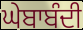
ਘੇਬਾਬੰਦੀ